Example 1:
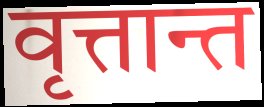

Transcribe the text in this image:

वृत्तान्त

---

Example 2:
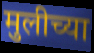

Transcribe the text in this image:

मुलीच्या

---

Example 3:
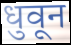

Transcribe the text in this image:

धुवून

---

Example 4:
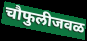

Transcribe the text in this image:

चौफुलीजवळ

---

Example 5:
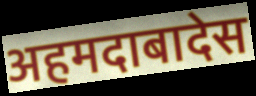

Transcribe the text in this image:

अहमदाबादेस